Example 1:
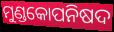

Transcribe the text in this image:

ମୁଣ୍ଡକୋପନିଷଦ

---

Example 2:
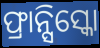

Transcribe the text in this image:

ଫ୍ରାନ୍ସିସ୍କୋ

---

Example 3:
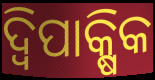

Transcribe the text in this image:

ଦ୍ବିପାକ୍ଷିକ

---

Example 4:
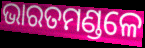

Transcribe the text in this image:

ଭାରତମଣ୍ଡଳେ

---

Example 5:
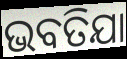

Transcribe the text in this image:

ଭବତିଯା